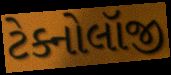
ટેક્નોલૉજી